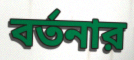
বর্তনার